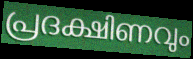
പ്രദക്ഷിണവും